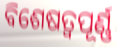
ବିଶେଷତ୍ୱପୂର୍ଣ୍ଣ